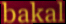
bakal